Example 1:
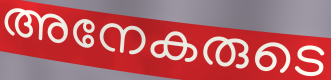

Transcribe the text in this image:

അനേകരുടെ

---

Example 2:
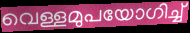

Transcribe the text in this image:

വെള്ളമുപയോഗിച്ച്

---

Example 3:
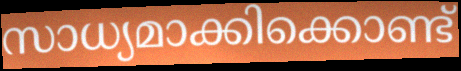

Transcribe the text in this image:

സാധ്യമാക്കിക്കൊണ്ട്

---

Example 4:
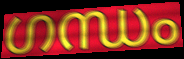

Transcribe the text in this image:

ഗന്ധം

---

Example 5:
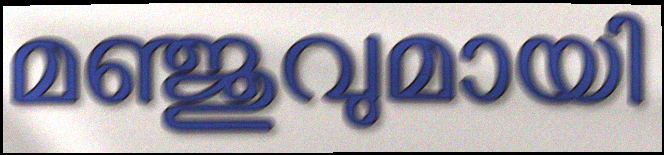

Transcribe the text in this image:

മഞ്ജുവുമായി